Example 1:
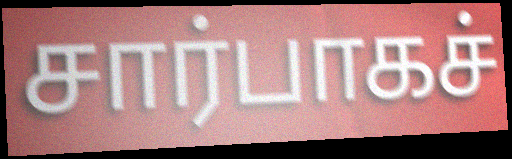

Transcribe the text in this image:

சார்பாகச்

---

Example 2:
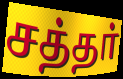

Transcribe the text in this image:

சத்தர்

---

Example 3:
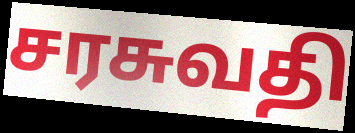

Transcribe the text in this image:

சரசுவதி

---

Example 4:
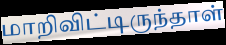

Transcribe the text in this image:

மாறிவிட்டிருந்தாள்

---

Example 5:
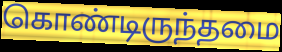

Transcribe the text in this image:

கொண்டிருந்தமை